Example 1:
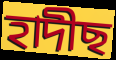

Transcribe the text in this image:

হাদীছ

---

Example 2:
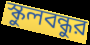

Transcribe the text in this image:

স্কুলবন্ধুর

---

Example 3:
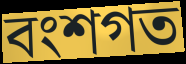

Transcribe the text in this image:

বংশগত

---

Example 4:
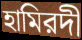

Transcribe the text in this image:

হামিরদী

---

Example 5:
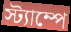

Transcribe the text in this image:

স্ট্যাম্পে